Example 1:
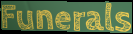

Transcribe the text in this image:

Funerals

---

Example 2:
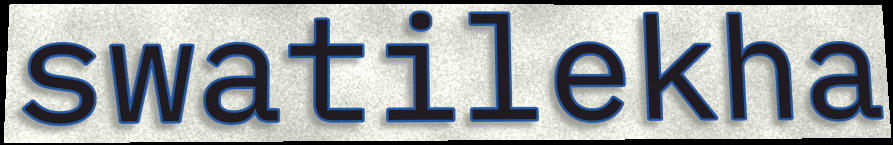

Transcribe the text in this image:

swatilekha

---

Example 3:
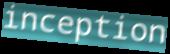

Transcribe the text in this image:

inception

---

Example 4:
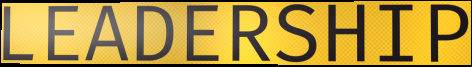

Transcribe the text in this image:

LEADERSHIP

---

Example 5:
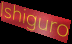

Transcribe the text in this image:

Ishiguro